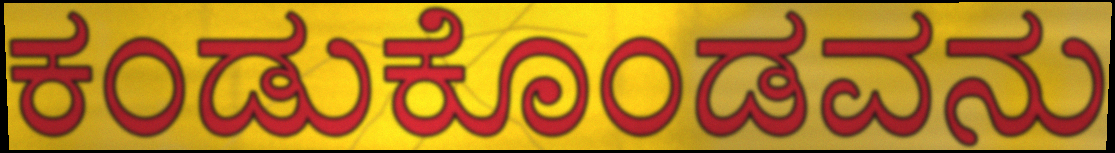
ಕಂಡುಕೊಂಡವನು